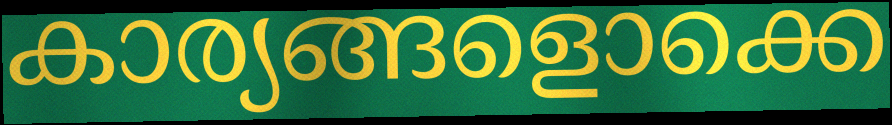
കാര്യങ്ങളൊക്കെ